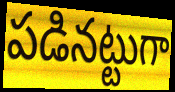
పడినట్టుగా